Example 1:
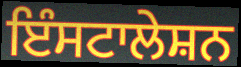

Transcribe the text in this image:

ਇੰਸਟਾਲੇਸ਼ਨ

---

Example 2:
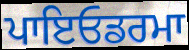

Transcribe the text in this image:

ਪਾਇਓਡਰਮਾ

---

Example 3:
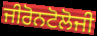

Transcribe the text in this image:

ਜੀਰੋਨਟੋਲੋਜੀ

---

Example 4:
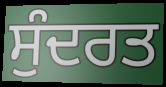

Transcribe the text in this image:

ਸੁੰਦਰਤ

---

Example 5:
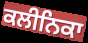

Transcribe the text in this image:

ਕਲੀਨਿਕਾ